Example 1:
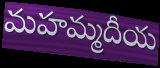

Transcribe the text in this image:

మహమ్మదీయ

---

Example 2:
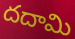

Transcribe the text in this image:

దదామి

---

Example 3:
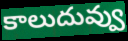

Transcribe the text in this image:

కాలుదువ్వు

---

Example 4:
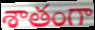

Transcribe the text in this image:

శాతంగా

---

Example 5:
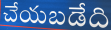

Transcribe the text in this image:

చేయబడేది